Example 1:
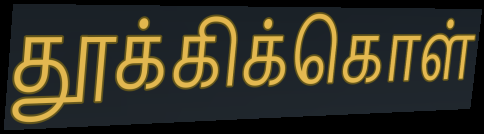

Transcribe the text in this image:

தூக்கிக்கொள்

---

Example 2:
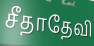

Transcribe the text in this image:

சீதாதேவி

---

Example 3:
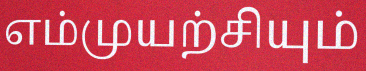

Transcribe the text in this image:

எம்முயற்சியும்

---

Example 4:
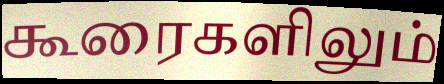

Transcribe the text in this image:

கூரைகளிலும்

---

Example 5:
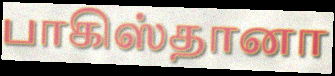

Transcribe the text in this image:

பாகிஸ்தானா